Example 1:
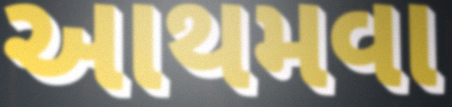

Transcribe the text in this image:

આથમવા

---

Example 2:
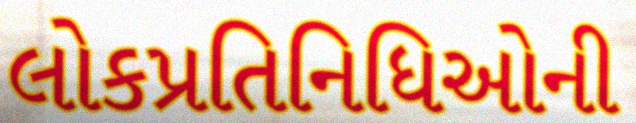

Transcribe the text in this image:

લોકપ્રતિનિધિઓની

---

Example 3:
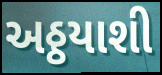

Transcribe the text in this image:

અઠ્ઠયાશી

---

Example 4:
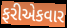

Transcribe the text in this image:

ફરીએકવાર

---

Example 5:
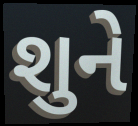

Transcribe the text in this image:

શુને